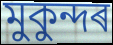
মুকুন্দৰ